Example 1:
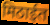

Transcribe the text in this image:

मिठाईत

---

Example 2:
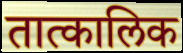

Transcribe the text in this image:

तात्कालिक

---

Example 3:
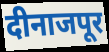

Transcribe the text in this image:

दीनाजपूर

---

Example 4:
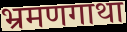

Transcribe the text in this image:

भ्रमणगाथा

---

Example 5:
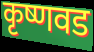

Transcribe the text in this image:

कृष्णवड